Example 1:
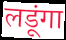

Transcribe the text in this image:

लडूंगा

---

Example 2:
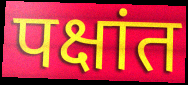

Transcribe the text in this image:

पक्षांत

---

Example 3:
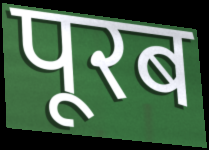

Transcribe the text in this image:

पूरब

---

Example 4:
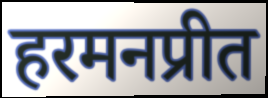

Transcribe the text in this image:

हरमनप्रीत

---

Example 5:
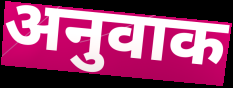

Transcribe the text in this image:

अनुवाक